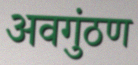
अवगुंठण